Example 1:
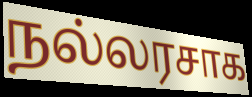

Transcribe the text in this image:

நல்லரசாக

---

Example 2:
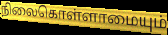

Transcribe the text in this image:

நிலைகொள்ளாமையும்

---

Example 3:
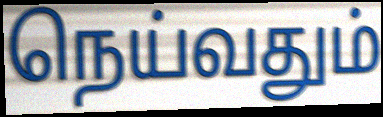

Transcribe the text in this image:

நெய்வதும்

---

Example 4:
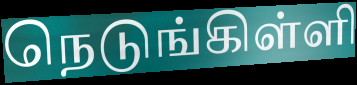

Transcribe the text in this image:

நெடுங்கிள்ளி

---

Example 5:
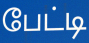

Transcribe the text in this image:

பேட்டி